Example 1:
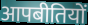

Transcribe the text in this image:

आपबीतियों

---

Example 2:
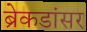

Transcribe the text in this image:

ब्रेकडांसर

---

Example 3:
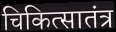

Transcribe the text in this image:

चिकित्सातंत्र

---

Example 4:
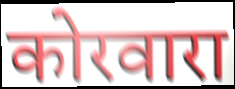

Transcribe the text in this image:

कोरवारा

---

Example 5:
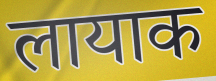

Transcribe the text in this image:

लायाक